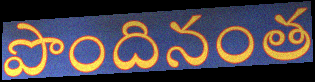
పొందినంత